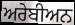
ਅਰੇਬੀਅਨ